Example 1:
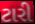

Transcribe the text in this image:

ટારી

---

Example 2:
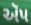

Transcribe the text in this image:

ઍપ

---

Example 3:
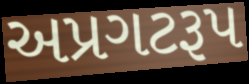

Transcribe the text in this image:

અપ્રગટરૂપ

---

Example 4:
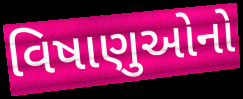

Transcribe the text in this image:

વિષાણુઓનો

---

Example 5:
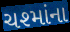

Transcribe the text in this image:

ચશ્માંના